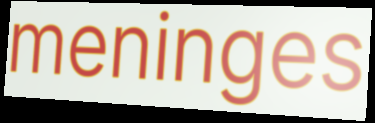
meninges